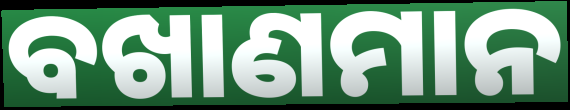
ବଖାଣମାନ